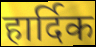
हार्दिक